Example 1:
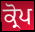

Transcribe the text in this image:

ਕ੍ਰੋਪ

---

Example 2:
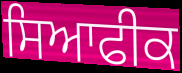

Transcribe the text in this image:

ਸਿਆਫੀਕ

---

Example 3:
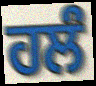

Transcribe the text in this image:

ਹਲੰ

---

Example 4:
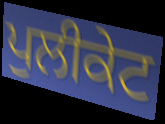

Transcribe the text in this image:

ਪੁਲੀਕੇਟ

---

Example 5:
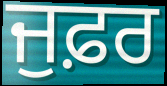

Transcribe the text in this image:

ਜੁਫ਼ਰ